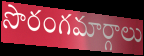
సొరంగమార్గాలు